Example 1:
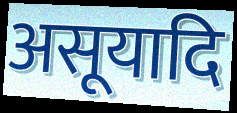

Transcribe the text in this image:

असूयादि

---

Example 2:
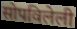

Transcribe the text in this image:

सोपविलेली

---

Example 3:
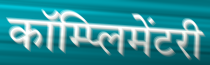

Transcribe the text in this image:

कॉम्प्लिमेंटरी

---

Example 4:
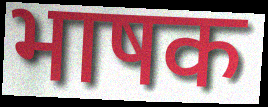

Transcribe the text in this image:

भाषक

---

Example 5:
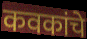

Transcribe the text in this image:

कवकांचे